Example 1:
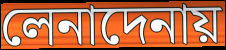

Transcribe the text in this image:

লেনাদেনায়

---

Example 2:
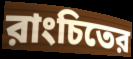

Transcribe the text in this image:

রাংচিতের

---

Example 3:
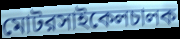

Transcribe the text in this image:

মোটরসাইকেলচালক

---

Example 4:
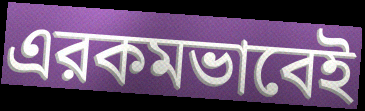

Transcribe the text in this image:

এরকমভাবেই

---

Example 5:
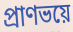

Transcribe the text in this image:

প্রাণভয়ে